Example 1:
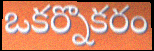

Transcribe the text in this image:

ఒకర్నొకరం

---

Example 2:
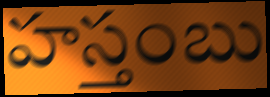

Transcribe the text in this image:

హస్తంబు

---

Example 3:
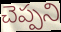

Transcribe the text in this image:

చెప్పని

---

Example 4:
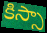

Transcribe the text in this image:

కిస్సా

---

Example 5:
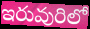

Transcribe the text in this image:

ఇరువురిలో